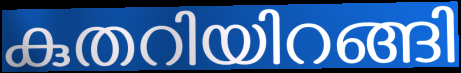
കുതറിയിറങ്ങി